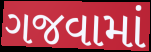
ગજવામાં